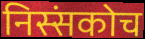
निस्संकोच